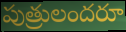
పుత్రులందరూ